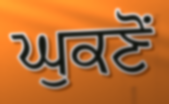
ਘੁਕਣੋਂ